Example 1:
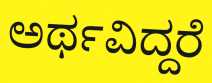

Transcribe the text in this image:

ಅರ್ಥವಿದ್ದರೆ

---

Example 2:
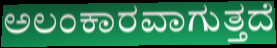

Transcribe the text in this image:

ಅಲಂಕಾರವಾಗುತ್ತದೆ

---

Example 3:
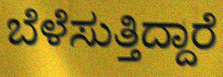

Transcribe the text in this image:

ಬೆಳೆಸುತ್ತಿದ್ದಾರೆ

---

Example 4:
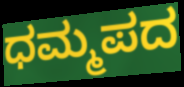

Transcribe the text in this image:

ಧಮ್ಮಪದ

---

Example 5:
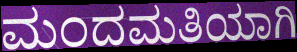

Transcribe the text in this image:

ಮಂದಮತಿಯಾಗಿ